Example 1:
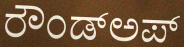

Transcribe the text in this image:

ರೌಂಡ್ಅಪ್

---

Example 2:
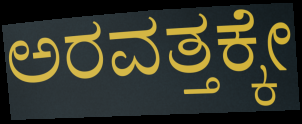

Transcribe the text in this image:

ಅರವತ್ತಕ್ಕೇ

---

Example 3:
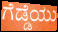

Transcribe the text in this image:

ಗೆಡ್ಡೆಯು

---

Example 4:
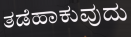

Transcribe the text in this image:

ತಡೆಹಾಕುವುದು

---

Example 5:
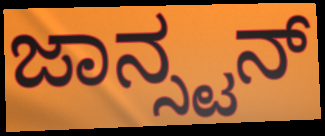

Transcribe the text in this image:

ಜಾನ್ಸ್ಟನ್